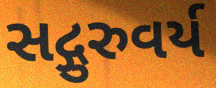
સદ્ગુરુવર્ય